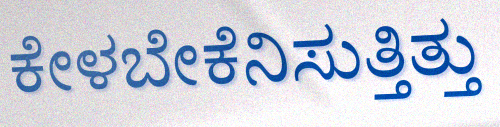
ಕೇಳಬೇಕೆನಿಸುತ್ತಿತ್ತು